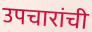
उपचारांची